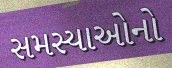
સમસ્યાઓનો